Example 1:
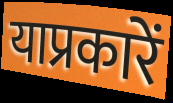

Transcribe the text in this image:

याप्रकारें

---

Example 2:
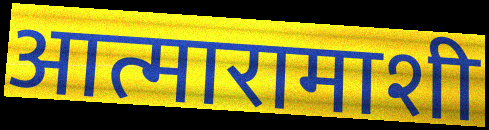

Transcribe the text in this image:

आत्मारामाशी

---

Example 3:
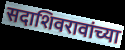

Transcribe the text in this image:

सदाशिवरावांच्या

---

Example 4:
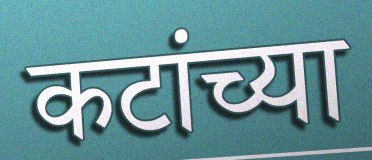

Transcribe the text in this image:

कटांच्या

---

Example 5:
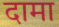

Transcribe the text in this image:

दामा